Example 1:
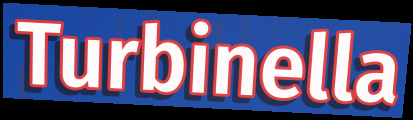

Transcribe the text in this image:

Turbinella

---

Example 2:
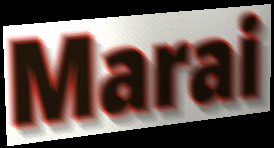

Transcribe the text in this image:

Marai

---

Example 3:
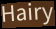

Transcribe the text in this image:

Hairy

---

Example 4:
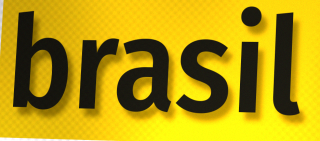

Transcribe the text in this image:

brasil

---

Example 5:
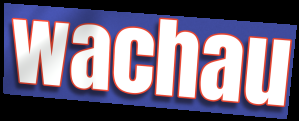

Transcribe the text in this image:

wachau